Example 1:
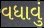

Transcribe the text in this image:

વધાવું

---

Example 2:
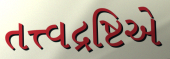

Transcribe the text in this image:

તત્ત્વદ્રષ્ટિએ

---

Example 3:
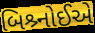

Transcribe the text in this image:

બિશ્ર્નોઈએ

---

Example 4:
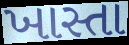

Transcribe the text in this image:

ખાસ્તા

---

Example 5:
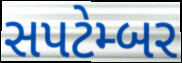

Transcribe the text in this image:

સપટેમ્બર